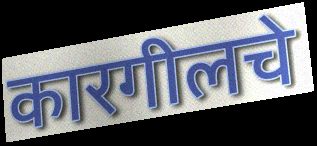
कारगीलचे